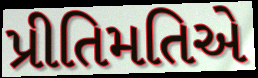
પ્રીતિમતિએ